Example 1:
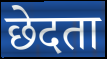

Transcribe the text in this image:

छेदता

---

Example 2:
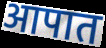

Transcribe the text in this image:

आपात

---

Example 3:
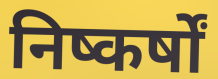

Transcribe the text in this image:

निष्कर्षों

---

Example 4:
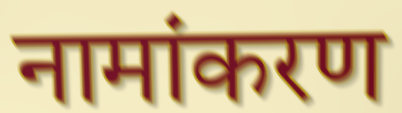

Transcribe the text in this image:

नामांकरण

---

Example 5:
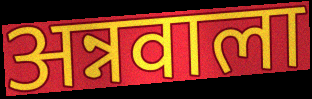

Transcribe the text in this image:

अन्नवाला